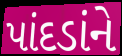
પાંદડાંને